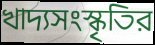
খাদ্যসংস্কৃতির